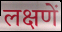
लक्षणें